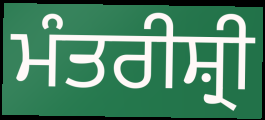
ਮੰਤਰੀਸ਼੍ਰੀ